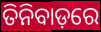
ତିନିବାଡ଼ରେ